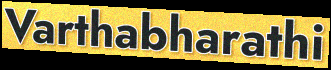
Varthabharathi